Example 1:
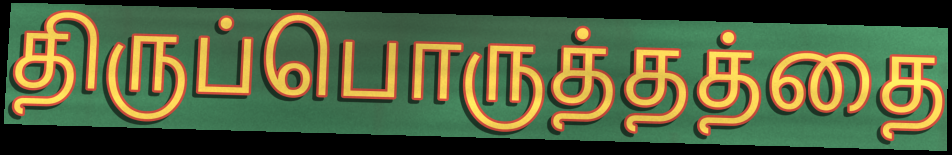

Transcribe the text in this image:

திருப்பொருத்தத்தை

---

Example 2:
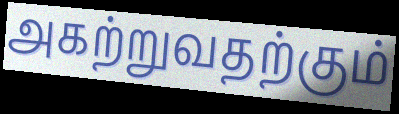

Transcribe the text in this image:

அகற்றுவதற்கும்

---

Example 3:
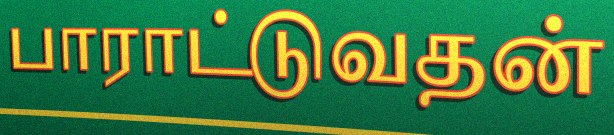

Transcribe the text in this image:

பாராட்டுவதன்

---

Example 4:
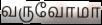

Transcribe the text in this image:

வருவோமா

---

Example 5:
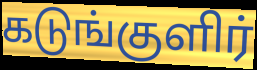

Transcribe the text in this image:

கடுங்குளிர்